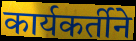
कार्यकर्तीने